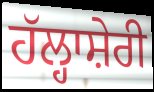
ਹੱਲ੍ਹਾਸ਼ੇਰੀ